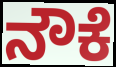
ನೌಕೆ